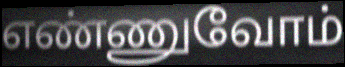
எண்ணுவோம்